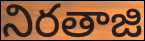
నిరతాజి